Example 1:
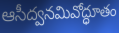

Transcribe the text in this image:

ఆసీద్వనమివోద్ధూతం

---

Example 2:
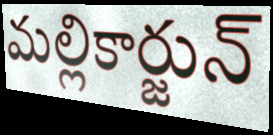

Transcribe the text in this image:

మల్లికార్జున్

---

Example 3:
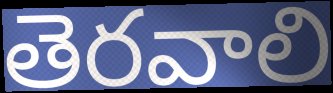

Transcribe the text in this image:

తెరవాలి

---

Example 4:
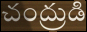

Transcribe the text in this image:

చంద్రుడి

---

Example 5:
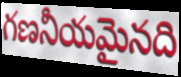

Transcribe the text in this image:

గణనీయమైనది